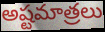
అష్టమాత్రలు